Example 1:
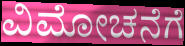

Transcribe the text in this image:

ವಿಮೋಚನೆಗೆ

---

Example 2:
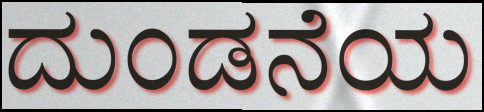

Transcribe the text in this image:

ದುಂಡನೆಯ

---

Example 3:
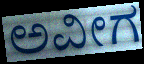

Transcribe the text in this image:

ಅವೀಗ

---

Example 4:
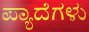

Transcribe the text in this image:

ಪ್ಯಾದೆಗಳು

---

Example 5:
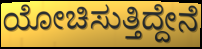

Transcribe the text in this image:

ಯೋಚಿಸುತ್ತಿದ್ದೇನೆ